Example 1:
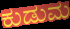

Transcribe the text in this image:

ಕುಡುಮ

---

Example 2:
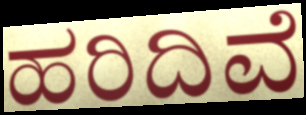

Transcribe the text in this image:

ಹರಿದಿವೆ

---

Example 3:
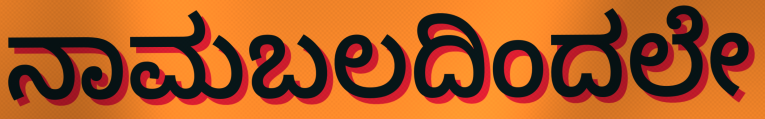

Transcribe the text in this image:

ನಾಮಬಲದಿಂದಲೇ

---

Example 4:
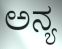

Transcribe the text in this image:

ಅನ್ಯ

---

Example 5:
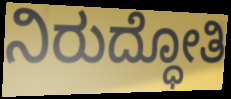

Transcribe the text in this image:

ನಿರುದ್ಧೋತಿ